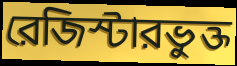
রেজিস্টারভুক্ত